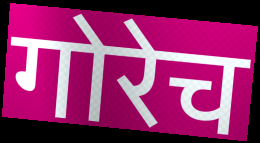
गोरेच